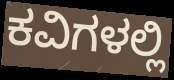
ಕವಿಗಳಲ್ಲಿ